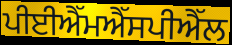
ਪੀਈਐੱਮਐੱਸਪੀਐੱਲ